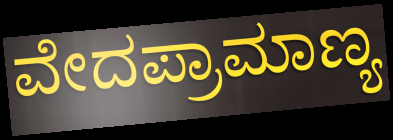
ವೇದಪ್ರಾಮಾಣ್ಯ